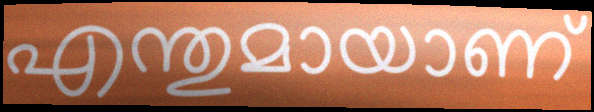
എന്തുമായാണ്